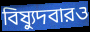
বিষ্যুদবারও